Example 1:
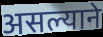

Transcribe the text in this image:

असल्याने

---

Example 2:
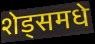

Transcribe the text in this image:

शेड्समधे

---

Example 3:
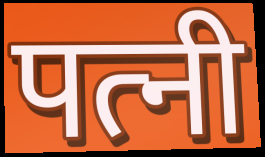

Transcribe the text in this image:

पत्‍नी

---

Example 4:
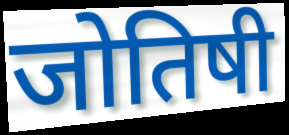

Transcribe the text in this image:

जोतिषी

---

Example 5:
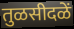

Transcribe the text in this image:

तुळसीदळें